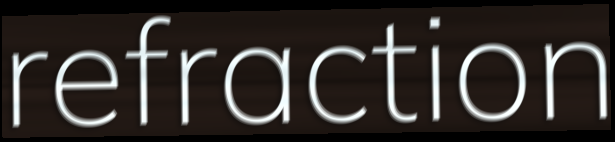
refraction